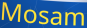
Mosam